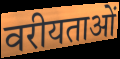
वरीयताओं